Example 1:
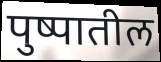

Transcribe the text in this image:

पुष्पातील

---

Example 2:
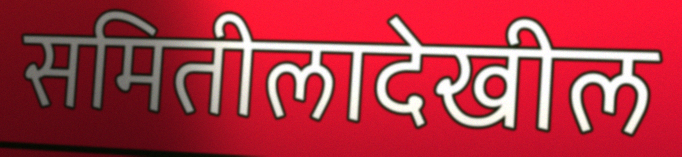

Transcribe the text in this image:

समितीलादेखील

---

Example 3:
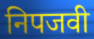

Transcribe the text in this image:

निपजवी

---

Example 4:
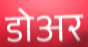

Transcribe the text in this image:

डोअर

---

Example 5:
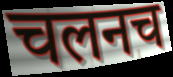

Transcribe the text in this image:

चलनच